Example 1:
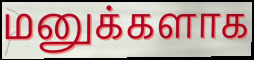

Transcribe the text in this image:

மனுக்களாக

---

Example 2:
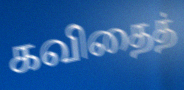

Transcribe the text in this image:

கவிதைத்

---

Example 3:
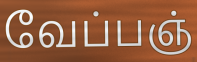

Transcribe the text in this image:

வேப்பஞ்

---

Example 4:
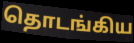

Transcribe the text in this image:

தொடங்கிய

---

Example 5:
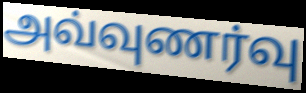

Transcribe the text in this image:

அவ்வுணர்வு